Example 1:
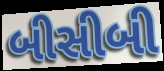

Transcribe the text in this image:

બીસીબી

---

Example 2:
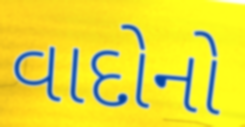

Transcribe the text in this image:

વાદોનો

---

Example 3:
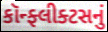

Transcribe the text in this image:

કૉન્ફ્લીક્ટસનું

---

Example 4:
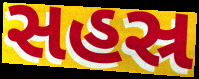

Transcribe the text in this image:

સહસ્ર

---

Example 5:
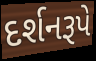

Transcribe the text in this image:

દર્શનરૂપે